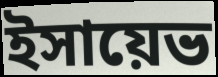
ইসায়েভ